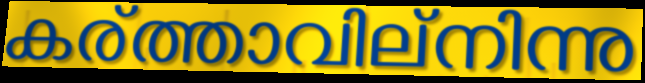
കര്ത്താവില്നിന്നു